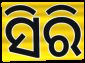
ସିରି